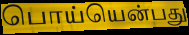
பொய்யென்பது